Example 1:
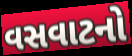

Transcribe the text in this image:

વસવાટનો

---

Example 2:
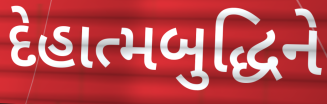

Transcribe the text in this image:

દેહાત્મબુદ્ધિને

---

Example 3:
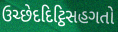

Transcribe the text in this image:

ઉચ્છેદદિટ્ઠિસહગતો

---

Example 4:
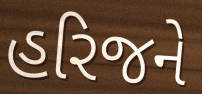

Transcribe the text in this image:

હરિજને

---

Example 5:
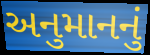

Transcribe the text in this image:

અનુમાનનું